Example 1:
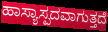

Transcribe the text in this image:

ಹಾಸ್ಯಾಸ್ಪದವಾಗುತ್ತದೆ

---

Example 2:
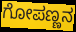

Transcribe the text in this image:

ಗೋಪಣ್ಣನ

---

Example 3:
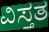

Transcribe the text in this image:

ವಿಸ್ತತ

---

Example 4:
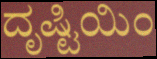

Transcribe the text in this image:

ದೃಷ್ಟಿಯಿಂ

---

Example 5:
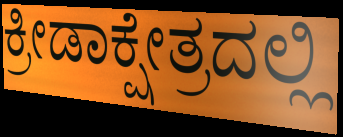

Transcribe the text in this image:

ಕ್ರೀಡಾಕ್ಷೇತ್ರದಲ್ಲಿ